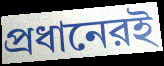
প্রধানেরই